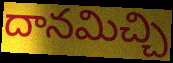
దానమిచ్చి